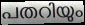
പതറിയും